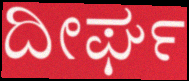
ದೀರ್ಘ